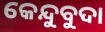
କେନ୍ଦୁବୁଦା